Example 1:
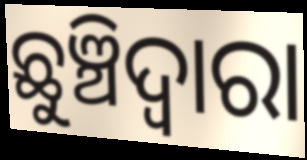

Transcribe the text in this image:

ଛୁଞ୍ଚିଦ୍ଵାରା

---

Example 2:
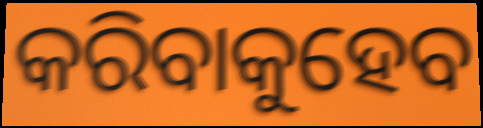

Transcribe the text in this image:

କରିବାକୁହେବ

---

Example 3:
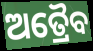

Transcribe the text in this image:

ଅତ୍ରୈବ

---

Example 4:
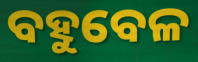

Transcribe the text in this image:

ବହୁବେଳ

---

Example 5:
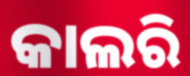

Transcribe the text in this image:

କାଲରି